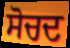
ਸੋਚਦ